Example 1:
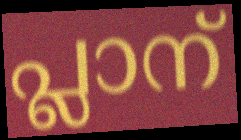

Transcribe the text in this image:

പ്ലാന്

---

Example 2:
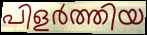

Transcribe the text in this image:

പിളർത്തിയ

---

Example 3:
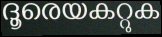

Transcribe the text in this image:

ദൂരെയകറ്റുക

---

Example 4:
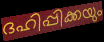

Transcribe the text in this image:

ദഹിപ്പിക്കയും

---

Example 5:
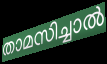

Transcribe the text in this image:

താമസിച്ചാൽ